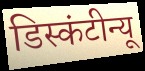
डिस्कंटीन्यू